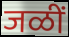
जळीं